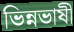
ভিন্নভাষী